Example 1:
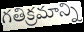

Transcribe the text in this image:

గతిక్రమాన్ని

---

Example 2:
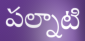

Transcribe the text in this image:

పల్నాటి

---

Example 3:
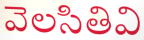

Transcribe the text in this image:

వెలసితివి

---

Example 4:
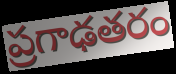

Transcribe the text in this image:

ప్రగాఢతరం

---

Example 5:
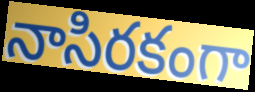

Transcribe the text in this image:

నాసిరకంగా